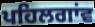
ਪਹਿਲਗਾਂਵ